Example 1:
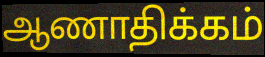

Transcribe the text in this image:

ஆணாதிக்கம்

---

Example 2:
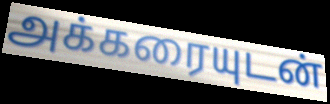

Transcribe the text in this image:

அக்கரையுடன்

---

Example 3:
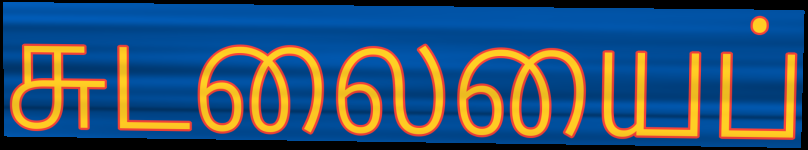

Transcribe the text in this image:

சுடலையைப்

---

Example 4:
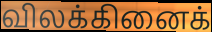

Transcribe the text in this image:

விலக்கினைக்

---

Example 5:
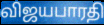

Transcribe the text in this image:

விஜயபாரதி